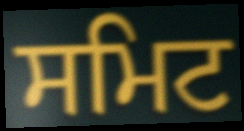
ਸਮਿਟ